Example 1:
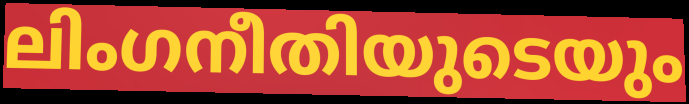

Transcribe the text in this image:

ലിംഗനീതിയുടെയും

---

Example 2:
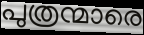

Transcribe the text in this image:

പുത്രന്മാരെ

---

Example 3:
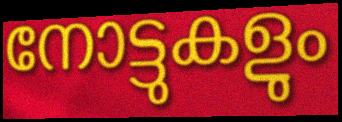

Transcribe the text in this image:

നോട്ടുകളും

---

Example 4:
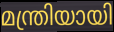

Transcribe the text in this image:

മന്ത്രിയായി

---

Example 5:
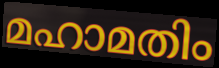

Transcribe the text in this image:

മഹാമതിം